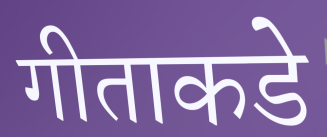
गीताकडे